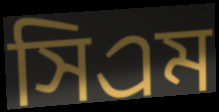
সিএম